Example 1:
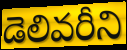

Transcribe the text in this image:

డెలివరీని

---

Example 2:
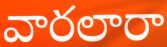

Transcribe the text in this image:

వారలారా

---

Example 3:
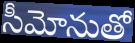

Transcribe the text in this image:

సీమోనుతో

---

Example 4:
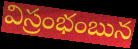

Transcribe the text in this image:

విస్రంభంబున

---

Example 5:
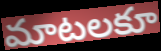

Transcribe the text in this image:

మాటలకూ